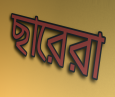
ছারেরা